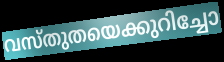
വസ്തുതയെക്കുറിച്ചോ